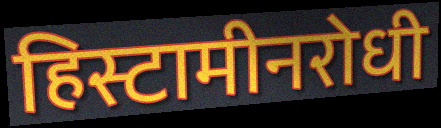
हिस्टामीनरोधी